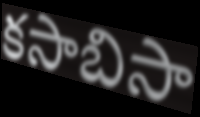
కసాబిసా